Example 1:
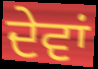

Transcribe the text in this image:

ਦੇਵਾਂ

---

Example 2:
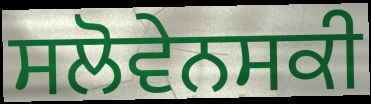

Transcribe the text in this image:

ਸਲੋਵੇਨਸਕੀ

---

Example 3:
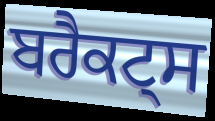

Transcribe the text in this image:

ਬਰੈਕਟ੍ਸ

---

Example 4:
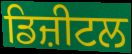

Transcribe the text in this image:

ਡਿਜ਼ੀਟਲ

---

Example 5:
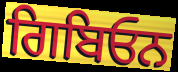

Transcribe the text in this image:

ਗਿਬਿਓਨ